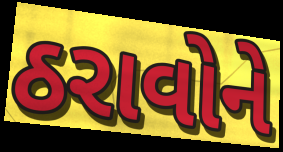
ઠરાવોને